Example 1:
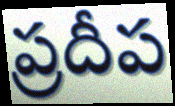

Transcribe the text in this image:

ప్రదీప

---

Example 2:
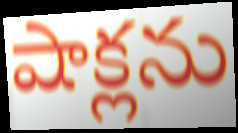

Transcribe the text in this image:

షాక్లను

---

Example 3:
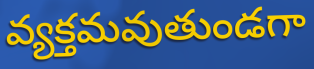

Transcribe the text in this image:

వ్యక్తమవుతుండగా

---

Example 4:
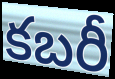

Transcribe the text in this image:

కబరీ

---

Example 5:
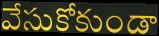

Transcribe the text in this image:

వేసుకోకుండా